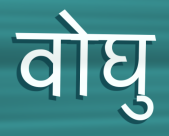
वोघु